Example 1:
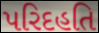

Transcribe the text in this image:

પરિદહતિ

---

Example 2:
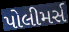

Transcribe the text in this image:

પોલીમર્સ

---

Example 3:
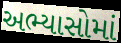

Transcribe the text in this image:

અભ્યાસોમાં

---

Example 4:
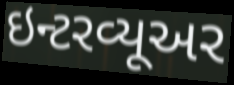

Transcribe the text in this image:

ઇન્ટરવ્યૂઅર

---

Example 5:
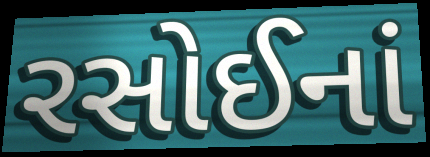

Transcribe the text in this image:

રસોઈનાં